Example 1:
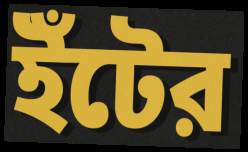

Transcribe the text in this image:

ইঁটের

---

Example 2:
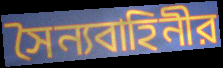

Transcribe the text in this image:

সৈন্যবাহিনীর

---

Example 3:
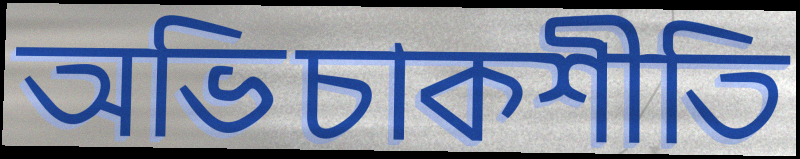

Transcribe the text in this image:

অভিচাকশীতি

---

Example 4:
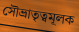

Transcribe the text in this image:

সৌভ্রাতৃত্বমূলক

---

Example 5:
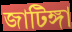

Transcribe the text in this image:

জাটিঙ্গা